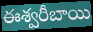
ఈశ్వరీబాయి